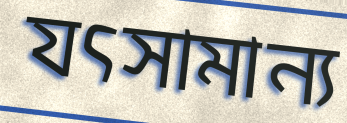
যৎসামান্য